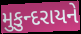
મુકુન્દરાયને